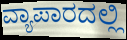
ವ್ಯಾಪಾರದಲ್ಲಿ